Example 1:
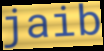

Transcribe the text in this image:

jaib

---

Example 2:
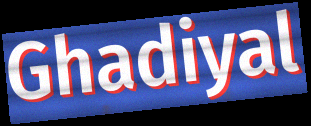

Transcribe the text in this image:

Ghadiyal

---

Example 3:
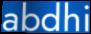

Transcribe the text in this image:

abdhi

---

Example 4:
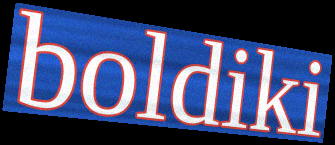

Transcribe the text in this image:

boldiki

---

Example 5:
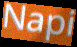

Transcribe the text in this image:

Napi